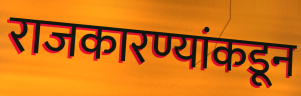
राजकारण्यांकडून